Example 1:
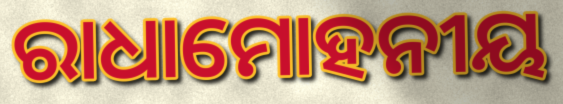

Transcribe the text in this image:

ରାଧାମୋହନୀୟ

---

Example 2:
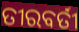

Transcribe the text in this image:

ତୀରବର୍ତୀ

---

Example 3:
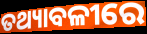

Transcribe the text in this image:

ତଥ୍ୟାବଳୀରେ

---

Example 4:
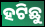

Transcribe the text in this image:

ହଟିଛୁ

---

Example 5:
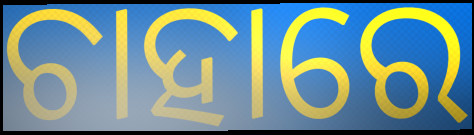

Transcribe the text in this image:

ଚାହାରେ